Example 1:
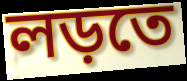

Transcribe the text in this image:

লড়তে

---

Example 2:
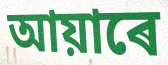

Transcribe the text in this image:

আয়াৰে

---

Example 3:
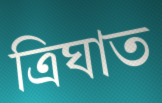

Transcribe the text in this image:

ত্ৰিঘাত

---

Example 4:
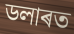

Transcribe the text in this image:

ডলাৰত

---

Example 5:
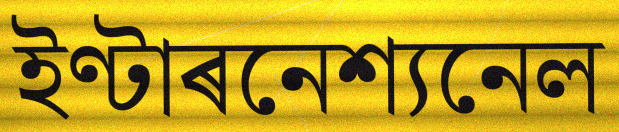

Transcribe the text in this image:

ইণ্টাৰনেশ্যনেল